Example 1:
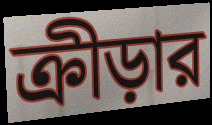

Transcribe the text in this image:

ক্রীড়ার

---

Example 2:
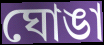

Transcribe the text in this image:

ঘোঙা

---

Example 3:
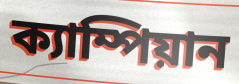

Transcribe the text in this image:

ক্যাম্পিয়ান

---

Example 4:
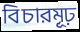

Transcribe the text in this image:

বিচারমূঢ়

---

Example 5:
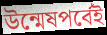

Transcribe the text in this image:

উন্মেষপর্বেই